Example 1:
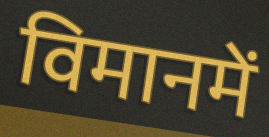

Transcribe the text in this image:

विमानमें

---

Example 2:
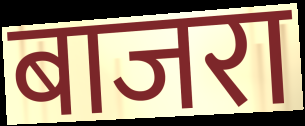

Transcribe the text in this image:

बाजरा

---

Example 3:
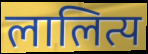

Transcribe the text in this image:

लालित्य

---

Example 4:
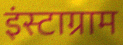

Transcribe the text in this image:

इंस्टाग्राम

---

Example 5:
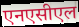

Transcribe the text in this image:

एनएसीएल